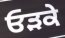
ਓੜਕੇ